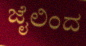
ಜೈಲಿಂದ